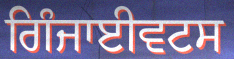
ਗਿੰਜਾਈਵਟਸ